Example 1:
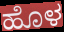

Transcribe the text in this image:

ಹೊಳ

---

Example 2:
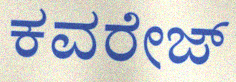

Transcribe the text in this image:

ಕವರೇಜ್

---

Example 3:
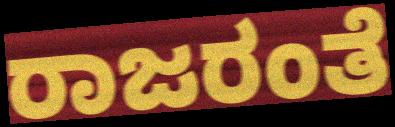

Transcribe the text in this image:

ರಾಜರಂತೆ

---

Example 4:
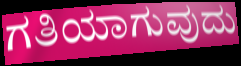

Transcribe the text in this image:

ಗತಿಯಾಗುವುದು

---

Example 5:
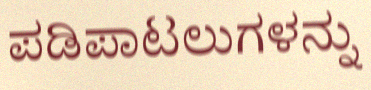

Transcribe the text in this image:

ಪಡಿಪಾಟಲುಗಳನ್ನು